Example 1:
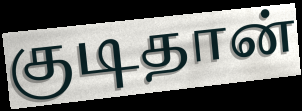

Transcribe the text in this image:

குடிதான்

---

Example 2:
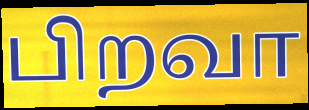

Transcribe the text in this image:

பிறவா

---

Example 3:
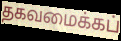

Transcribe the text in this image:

தகவமைக்கப்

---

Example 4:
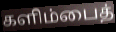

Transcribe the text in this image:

களிம்பைத்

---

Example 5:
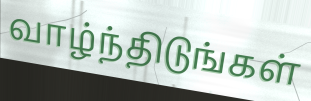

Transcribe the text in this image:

வாழ்ந்திடுங்கள்